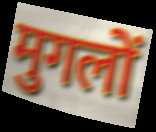
मुगलों